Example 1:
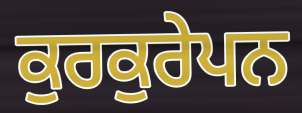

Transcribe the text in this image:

ਕੁਰਕੁਰੇਪਨ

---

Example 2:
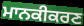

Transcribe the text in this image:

ਮਾਨਕੀਕਰਣ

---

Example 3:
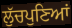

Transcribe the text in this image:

ਲੁੱਚਪੁਣਿਆਂ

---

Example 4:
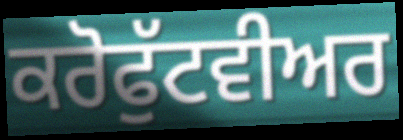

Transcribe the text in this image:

ਕਰੋਫੁੱਟਵੀਅਰ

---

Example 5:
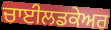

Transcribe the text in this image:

ਚਾਈਲਡਕੇਅਰ